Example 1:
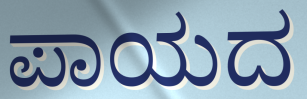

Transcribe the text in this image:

ಪಾಯದ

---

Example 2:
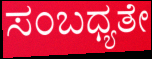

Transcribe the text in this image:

ಸಂಬಧ್ಯತೇ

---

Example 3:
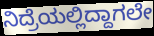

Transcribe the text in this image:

ನಿದ್ರೆಯಲ್ಲಿದ್ದಾಗಲೇ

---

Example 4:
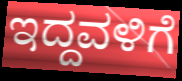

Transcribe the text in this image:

ಇದ್ದವಳಿಗೆ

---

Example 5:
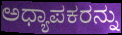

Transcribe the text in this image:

ಅಧ್ಯಾಪಕರನ್ನು